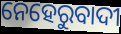
ନେହେରୁବାଦୀ